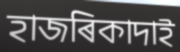
হাজৰিকাদাই